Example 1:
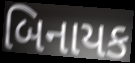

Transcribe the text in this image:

બિનાયક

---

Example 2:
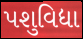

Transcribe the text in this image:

પશુવિદ્યા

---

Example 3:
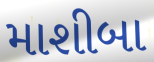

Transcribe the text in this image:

માશીબા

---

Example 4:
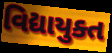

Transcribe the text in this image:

વિદ્યાયુક્ત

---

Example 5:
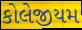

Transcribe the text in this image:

કોલેજીયમ